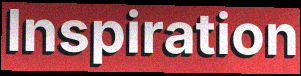
Inspiration